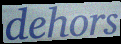
dehors